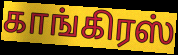
காங்கிரஸ்